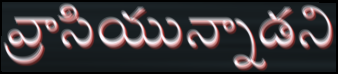
వ్రాసియున్నాడని